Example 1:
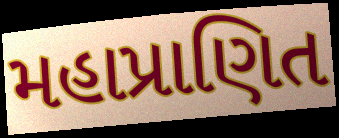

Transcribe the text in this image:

મહાપ્રાણિત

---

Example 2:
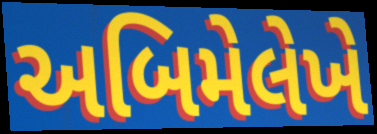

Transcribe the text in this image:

અબિમેલેખે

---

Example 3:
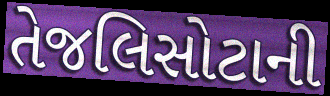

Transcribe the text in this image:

તેજલિસોટાની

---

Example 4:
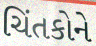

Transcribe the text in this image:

ચિંતકોને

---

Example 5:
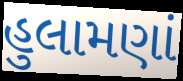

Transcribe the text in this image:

હુલામણાં